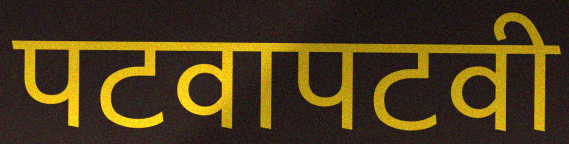
पटवापटवी